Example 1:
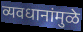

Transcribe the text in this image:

व्यवधानांमुळे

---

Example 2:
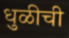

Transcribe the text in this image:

धुळीची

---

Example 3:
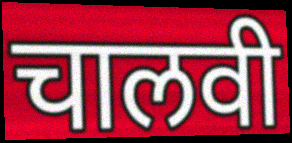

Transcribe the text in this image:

चालवी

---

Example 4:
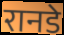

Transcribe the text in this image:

रानडे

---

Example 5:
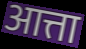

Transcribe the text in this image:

आत्ता